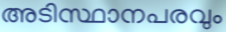
അടിസ്ഥാനപരവും